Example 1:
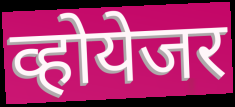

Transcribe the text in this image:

व्होयेजर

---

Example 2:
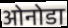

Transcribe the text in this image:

ओनोडा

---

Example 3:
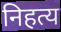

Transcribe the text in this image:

निहत्य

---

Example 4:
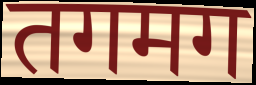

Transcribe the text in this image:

तगमग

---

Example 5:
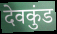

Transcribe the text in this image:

देवकुंड